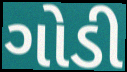
ગોડી